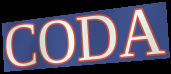
CODA